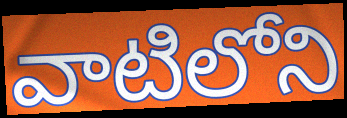
వాటిలోని